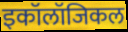
इकॉलॉजिकल